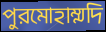
পুরমোহাম্মদি